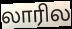
லாரில